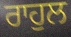
ਰਾਹੁਲ